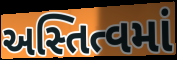
અસ્તિત્વમાં